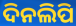
ଦିନଲିପି